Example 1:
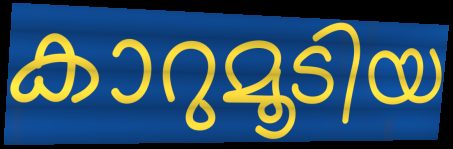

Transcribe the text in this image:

കാറുമൂടിയ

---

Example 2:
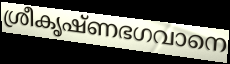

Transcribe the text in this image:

ശ്രീകൃഷ്ണഭഗവാനെ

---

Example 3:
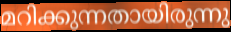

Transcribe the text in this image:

മറിക്കുന്നതായിരുന്നു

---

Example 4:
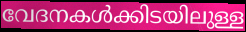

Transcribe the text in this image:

വേദനകൾക്കിടയിലുള്ള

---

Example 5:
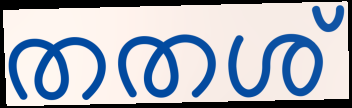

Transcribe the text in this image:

തതശ്